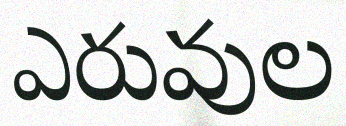
ఎరువుల